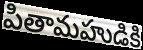
పితామహుడికి